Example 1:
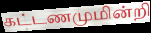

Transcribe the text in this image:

கட்டணமுமின்றி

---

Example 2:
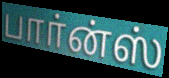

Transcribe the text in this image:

பார்ன்ஸ்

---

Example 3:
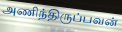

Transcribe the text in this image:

அணிந்திருப்பவன்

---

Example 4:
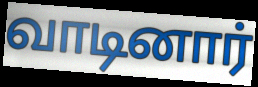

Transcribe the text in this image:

வாடினார்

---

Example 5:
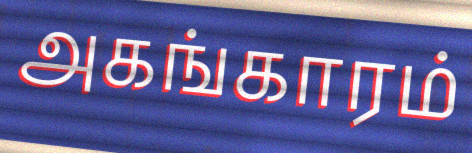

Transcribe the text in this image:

அகங்காரம்